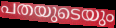
പതയുടെയും